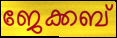
ജേക്കബ്